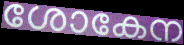
ശോകേന